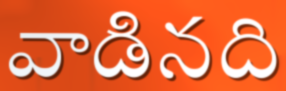
వాడినది